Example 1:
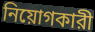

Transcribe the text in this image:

নিয়োগকারী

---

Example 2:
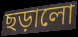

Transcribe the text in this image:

ছড়ালো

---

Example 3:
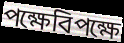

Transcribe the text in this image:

পক্ষেবিপক্ষে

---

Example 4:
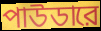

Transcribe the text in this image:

পাউডারে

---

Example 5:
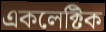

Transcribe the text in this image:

একলেক্টিক